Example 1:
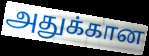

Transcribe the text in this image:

அதுக்கான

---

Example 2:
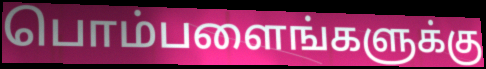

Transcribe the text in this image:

பொம்பளைங்களுக்கு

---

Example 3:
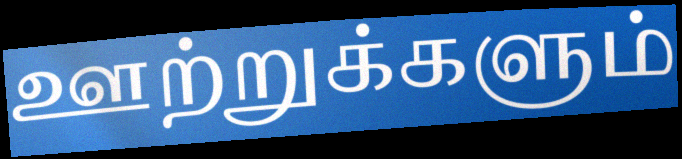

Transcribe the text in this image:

ஊற்றுக்களும்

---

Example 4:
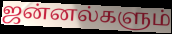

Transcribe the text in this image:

ஜன்னல்களும்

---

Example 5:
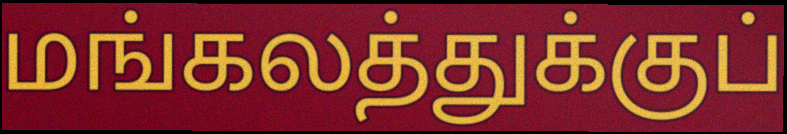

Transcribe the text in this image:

மங்கலத்துக்குப்